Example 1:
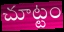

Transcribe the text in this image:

చూట్టం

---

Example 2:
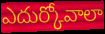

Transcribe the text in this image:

ఎదుర్కోవాలా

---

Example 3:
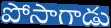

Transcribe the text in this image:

పోసాగాడు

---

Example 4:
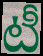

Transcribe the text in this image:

టీ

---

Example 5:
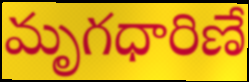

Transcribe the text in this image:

మృగధారిణే